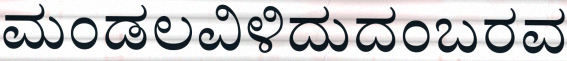
ಮಂಡಲವಿಳಿದುದಂಬರವ